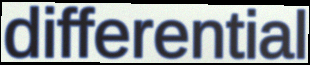
differential